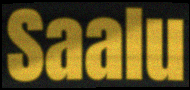
Saalu